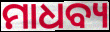
ମାଧବ୍ୟ